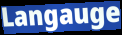
Langauge